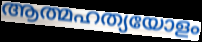
ആത്മഹത്യയോളം